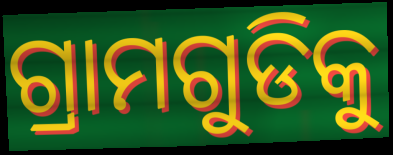
ଗ୍ରାମଗୁଡିକୁ